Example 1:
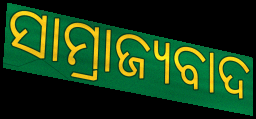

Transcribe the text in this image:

ସାମ୍ରାଜ୍ୟବାଦ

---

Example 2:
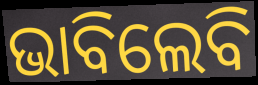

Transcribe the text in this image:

ଭାବିଲେବି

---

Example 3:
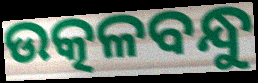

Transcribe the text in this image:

ଉତ୍କଳବନ୍ଧୁ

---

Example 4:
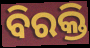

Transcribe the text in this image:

ବିରକ୍ତି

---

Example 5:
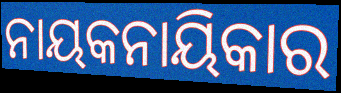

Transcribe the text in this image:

ନାୟକନାୟିକାର